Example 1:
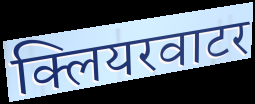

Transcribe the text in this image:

क्लियरवाटर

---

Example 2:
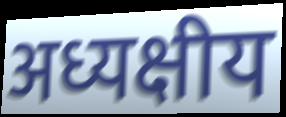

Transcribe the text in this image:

अध्यक्षीय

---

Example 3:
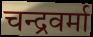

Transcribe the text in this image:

चन्द्रवर्मा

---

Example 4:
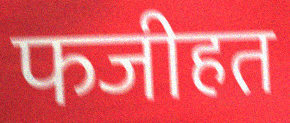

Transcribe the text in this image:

फजीहत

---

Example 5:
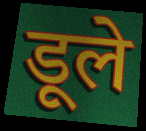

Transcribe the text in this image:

डूले